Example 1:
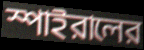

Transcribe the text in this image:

স্পাইরালের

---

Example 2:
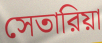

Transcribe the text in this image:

সেতারিয়া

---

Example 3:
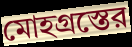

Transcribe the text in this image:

মোহগ্রস্তের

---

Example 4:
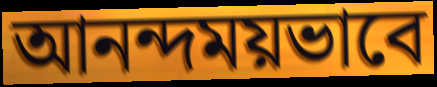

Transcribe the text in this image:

আনন্দময়ভাবে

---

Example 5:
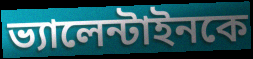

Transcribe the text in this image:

ভ্যালেন্টাইনকে